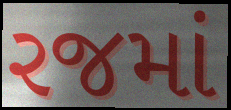
રજમાં